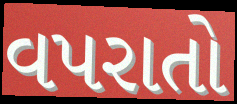
વપરાતો